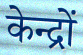
केन्द्रों